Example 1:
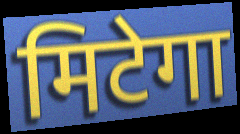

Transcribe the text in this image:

मिटेगा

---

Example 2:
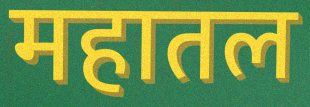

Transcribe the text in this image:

महातल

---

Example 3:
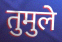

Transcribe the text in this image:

तुमुले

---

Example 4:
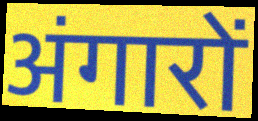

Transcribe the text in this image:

अंगारों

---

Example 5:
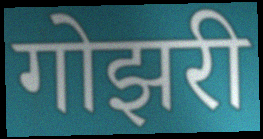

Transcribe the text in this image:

गोझरी